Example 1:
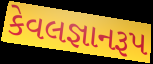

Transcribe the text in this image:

કેવલજ્ઞાનરૂપ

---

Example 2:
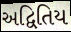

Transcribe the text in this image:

અદ્વિતિય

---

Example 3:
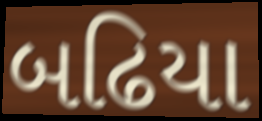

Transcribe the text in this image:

બઢિયા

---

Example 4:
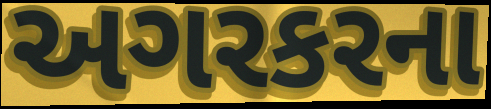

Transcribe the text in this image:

અગરકરના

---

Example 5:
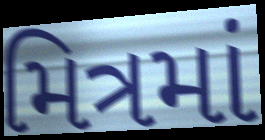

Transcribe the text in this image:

મિત્રમાં